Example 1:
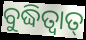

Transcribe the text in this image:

ବୁଦ୍ଧିତ୍ୱାତ୍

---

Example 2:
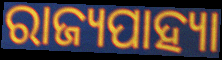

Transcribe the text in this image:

ରାଜ୍ୟପାହ୍ୟା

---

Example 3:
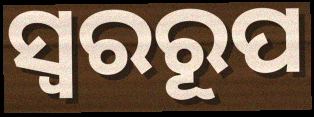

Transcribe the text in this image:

ସ୍ୱରରୂପ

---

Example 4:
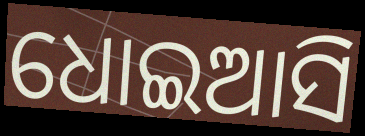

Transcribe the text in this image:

ଧୋଇଆସି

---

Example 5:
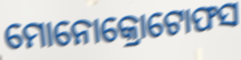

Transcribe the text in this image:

ମୋନୋକ୍ରୋଟୋଫସ